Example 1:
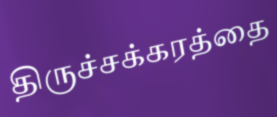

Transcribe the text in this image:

திருச்சக்கரத்தை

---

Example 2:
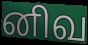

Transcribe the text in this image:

னிவ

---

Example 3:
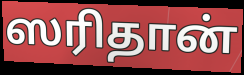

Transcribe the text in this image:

ஸரிதான்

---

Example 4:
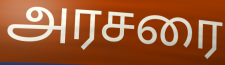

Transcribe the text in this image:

அரசரை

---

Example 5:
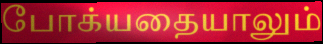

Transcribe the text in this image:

போக்யதையாலும்